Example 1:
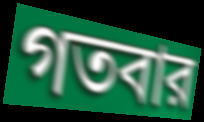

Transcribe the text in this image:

গতবার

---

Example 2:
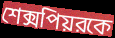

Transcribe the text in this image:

শেক্সপিয়রকে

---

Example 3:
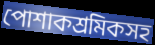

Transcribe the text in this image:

পোশাকশ্রমিকসহ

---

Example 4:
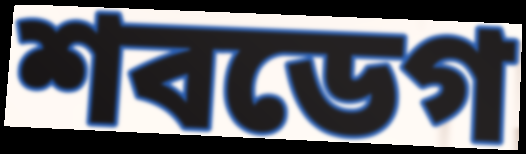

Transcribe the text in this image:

শবডেগ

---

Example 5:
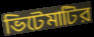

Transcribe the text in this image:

ভিটেমাটির